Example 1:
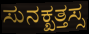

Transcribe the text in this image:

ಸುನಕ್ಖತ್ತಸ್ಸ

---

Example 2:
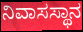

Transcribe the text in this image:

ನಿವಾಸಸ್ಥಾನ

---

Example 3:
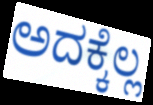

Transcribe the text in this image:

ಅದಕ್ಕೆಲ್ಲ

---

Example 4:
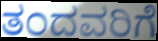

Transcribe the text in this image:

ತಂದವರಿಗೆ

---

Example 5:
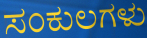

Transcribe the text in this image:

ಸಂಕುಲಗಳು